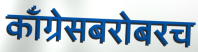
काँग्रेसबरोबरच